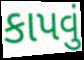
કાપવું